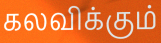
கலவிக்கும்